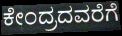
ಕೇಂದ್ರದವರೆಗೆ